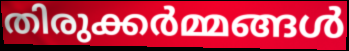
തിരുക്കർമ്മങ്ങൾ